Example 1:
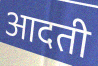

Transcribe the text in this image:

आदती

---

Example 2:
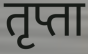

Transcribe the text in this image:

तृप्ता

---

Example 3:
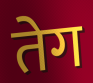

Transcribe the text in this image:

तेग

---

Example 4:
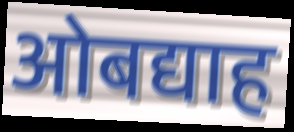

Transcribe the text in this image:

ओबद्याह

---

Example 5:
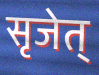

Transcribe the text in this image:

सृजेत्